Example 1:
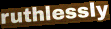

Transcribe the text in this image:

ruthlessly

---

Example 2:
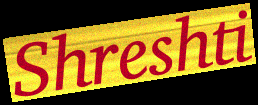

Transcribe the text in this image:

Shreshti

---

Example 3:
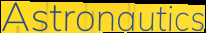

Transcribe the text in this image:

Astronautics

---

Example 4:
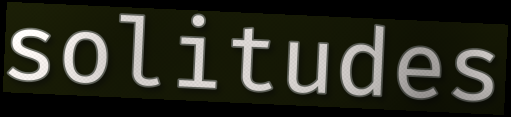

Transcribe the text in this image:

solitudes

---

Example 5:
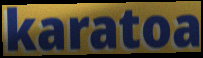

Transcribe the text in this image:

karatoa